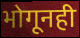
भोगूनही